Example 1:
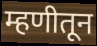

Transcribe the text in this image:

म्हणीतून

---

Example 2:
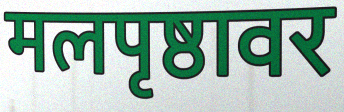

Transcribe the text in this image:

मलपृष्ठावर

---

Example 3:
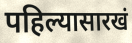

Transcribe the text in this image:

पहिल्यासारखं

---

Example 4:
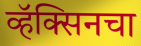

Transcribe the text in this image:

व्हॅक्सिनचा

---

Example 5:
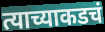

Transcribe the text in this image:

त्याच्याकडचं